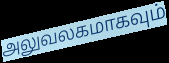
அலுவலகமாகவும்